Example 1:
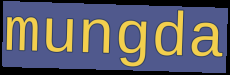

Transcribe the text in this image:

mungda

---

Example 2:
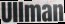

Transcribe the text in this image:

Ullman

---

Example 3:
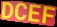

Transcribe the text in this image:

DCEF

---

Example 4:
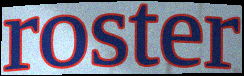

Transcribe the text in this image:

roster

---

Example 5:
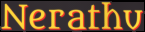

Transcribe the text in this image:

Nerathu